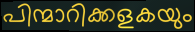
പിന്മാറിക്കളകയും